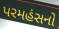
પરમહંસનો